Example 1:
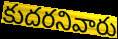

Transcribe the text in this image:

కుదరనివారు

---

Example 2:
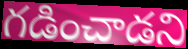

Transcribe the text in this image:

గడించాడని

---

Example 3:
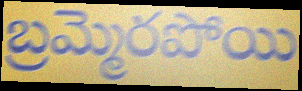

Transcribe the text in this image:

బ్రమ్మెరపోయి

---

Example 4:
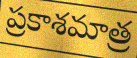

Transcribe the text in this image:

ప్రకాశమాత్ర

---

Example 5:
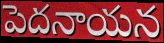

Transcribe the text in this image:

పెదనాయన